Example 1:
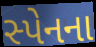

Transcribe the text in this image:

સ્પેનના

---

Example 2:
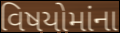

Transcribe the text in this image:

વિષયોમાંના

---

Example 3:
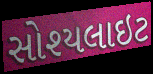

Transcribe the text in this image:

સોશ્યલાઇટ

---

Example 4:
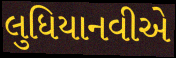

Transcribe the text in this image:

લુધિયાનવીએ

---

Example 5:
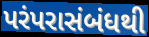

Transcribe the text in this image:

પરંપરાસંબંધથી